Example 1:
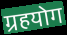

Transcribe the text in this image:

ग्रहयोग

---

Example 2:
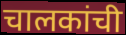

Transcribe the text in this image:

चालकांची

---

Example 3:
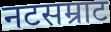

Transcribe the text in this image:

नटसम्राट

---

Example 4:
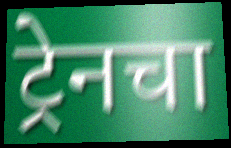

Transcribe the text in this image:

ट्रेनचा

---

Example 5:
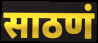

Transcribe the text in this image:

साठणं